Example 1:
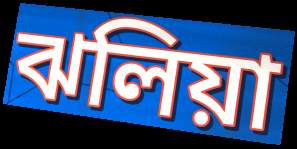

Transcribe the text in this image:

ঝলিয়া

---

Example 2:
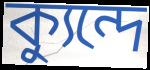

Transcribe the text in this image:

ক্যুন্দে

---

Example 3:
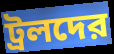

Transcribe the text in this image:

ট্রলদের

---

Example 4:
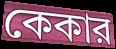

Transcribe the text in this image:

কেকার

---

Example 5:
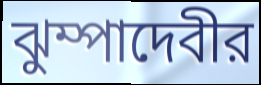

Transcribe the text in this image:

ঝুম্পাদেবীর